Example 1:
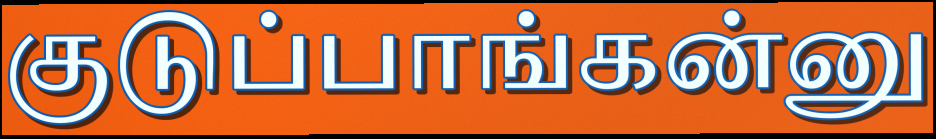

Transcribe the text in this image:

குடுப்பாங்கன்னு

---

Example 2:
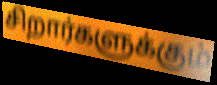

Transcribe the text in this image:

சிறார்களுக்கும்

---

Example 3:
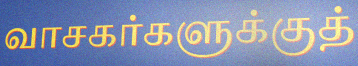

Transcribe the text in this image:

வாசகர்களுக்குத்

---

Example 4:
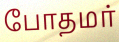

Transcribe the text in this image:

போதமர்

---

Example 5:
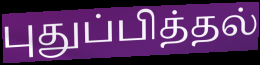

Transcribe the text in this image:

புதுப்பித்தல்